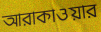
আরাকাওয়ার